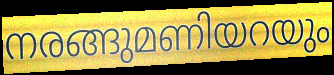
നരങ്ങുമണിയറയും